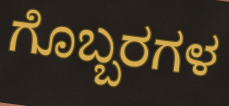
ಗೊಬ್ಬರಗಳ